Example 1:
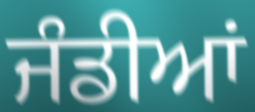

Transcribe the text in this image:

ਜੰਡੀਆਂ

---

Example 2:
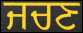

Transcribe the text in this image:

ਜਚਣ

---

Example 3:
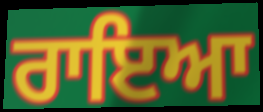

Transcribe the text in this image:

ਰਾਇਆ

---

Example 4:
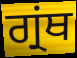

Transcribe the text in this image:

ਗ੍ਰਂਥ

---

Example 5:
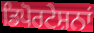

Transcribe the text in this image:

ਡਿਪੋਰਟੇਸ਼ਨਾਂ